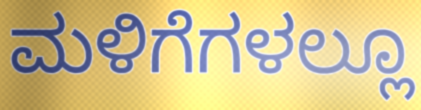
ಮಳಿಗೆಗಳಲ್ಲೂ